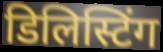
डिलिस्टिंग